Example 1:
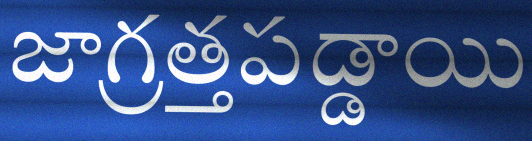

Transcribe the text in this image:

జాగ్రత్తపడ్డాయి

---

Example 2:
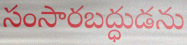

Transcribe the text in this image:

సంసారబద్ధుడను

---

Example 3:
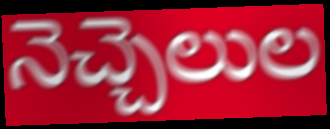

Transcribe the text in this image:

నెచ్చెలుల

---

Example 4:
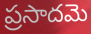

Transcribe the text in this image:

ప్రసాదమె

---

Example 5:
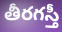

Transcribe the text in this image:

తీరగస్తీ